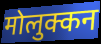
मोलुक्कन